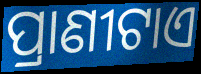
ପ୍ରାଣୀଟାଏ